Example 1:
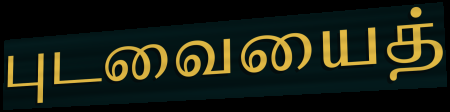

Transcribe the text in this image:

புடவையைத்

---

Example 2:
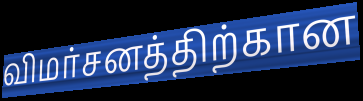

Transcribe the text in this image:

விமர்சனத்திற்கான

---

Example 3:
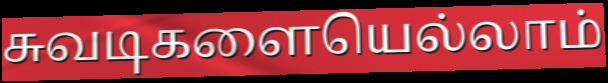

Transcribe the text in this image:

சுவடிகளையெல்லாம்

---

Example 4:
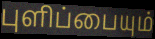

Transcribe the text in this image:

புளிப்பையும்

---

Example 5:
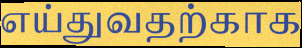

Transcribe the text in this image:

எய்துவதற்காக